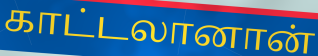
காட்டலானான்